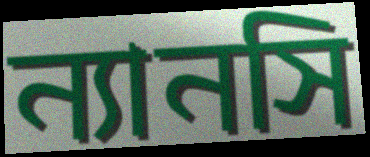
ন্যানসি